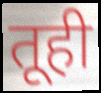
तूही